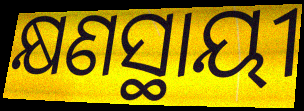
କ୍ଷଣସ୍ଥାୟୀ